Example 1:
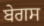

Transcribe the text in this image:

ਬੇਗਸ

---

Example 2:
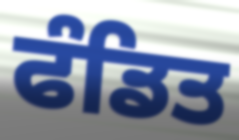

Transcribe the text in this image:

ਫੰਡਿਤ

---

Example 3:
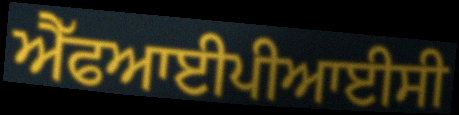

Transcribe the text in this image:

ਐੱਫਆਈਪੀਆਈਸੀ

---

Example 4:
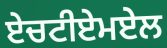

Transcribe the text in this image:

ਏਚਟੀਏਮਏਲ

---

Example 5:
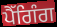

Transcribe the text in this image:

ਪੈੱਗਿੰਗ